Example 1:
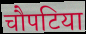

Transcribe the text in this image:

चौपटिया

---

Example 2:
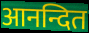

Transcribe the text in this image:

आनन्दित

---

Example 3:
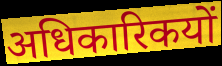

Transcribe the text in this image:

अधिकारिकयों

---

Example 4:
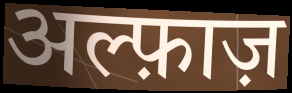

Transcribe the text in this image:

अल्फ़ाज़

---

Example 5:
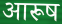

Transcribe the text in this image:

आरूष